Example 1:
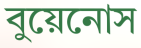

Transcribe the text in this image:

বুয়েনোস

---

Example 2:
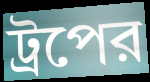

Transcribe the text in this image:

ট্রপের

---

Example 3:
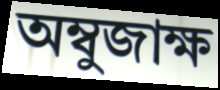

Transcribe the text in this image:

অম্বুজাক্ষ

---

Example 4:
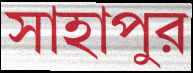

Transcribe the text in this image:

সাহাপুর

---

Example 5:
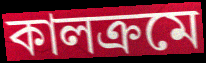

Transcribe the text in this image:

কালক্রমে